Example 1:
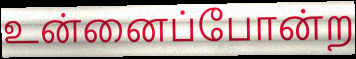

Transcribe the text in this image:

உன்னைப்போன்ற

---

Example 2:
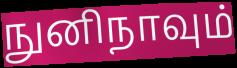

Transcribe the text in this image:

நுனிநாவும்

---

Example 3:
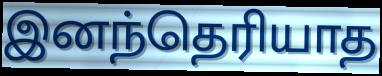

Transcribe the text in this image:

இனந்தெரியாத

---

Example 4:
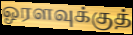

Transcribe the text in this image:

ஓரளவுக்குத்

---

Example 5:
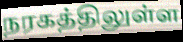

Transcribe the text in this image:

நரகத்திலுள்ள